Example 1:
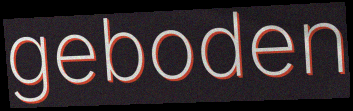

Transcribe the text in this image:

geboden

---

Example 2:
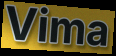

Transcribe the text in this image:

Vima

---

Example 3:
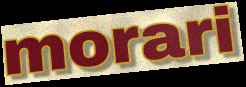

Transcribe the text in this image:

morari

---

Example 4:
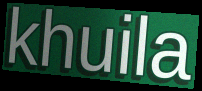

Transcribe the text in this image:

khuila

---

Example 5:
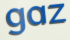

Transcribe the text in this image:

gaz